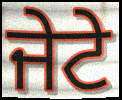
ਜੇਟੇ